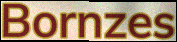
Bornzes